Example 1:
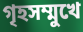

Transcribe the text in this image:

গৃহসম্মুখে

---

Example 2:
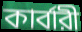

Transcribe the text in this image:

কার্বারী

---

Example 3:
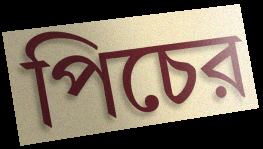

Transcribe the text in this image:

পিচের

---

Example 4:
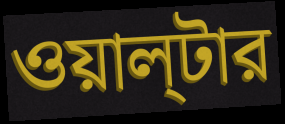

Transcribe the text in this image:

ওয়াল্‌টার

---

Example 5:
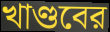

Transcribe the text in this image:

খাণ্ডবের